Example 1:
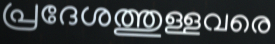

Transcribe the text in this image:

പ്രദേശത്തുള്ളവരെ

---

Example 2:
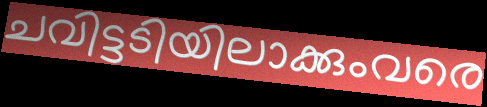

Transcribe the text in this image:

ചവിട്ടടിയിലാക്കുംവരെ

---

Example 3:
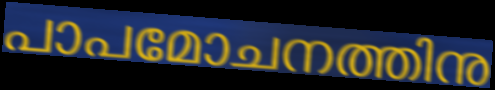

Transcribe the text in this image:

പാപമോചനത്തിനു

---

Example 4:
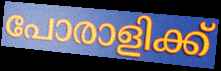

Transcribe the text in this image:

പോരാളിക്ക്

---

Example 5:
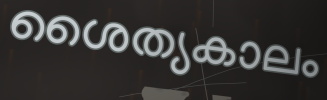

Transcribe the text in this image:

ശൈത്യകാലം